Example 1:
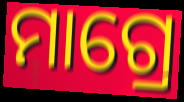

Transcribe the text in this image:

ମାଗ୍ରେ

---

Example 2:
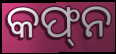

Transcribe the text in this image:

କଫ୍‌ନ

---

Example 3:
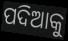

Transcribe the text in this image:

ପଦିଆକୁ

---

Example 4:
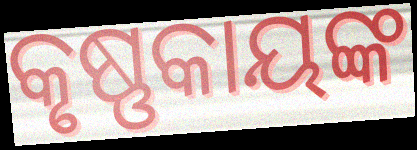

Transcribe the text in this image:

କୃଷ୍ଣକାୟଙ୍କ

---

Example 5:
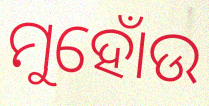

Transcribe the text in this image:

ମୁହୋଁଉ